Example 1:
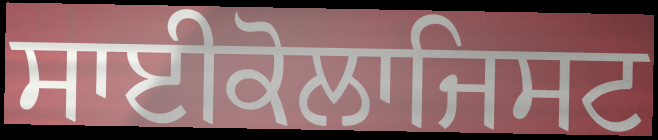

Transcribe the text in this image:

ਸਾਈਕੋਲਾਜਿਸਟ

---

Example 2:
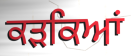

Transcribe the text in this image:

ਕੜਕਿਆਂ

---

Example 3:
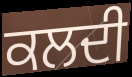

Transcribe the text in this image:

ਕਲਦੀ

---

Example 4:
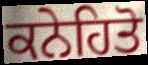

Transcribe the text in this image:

ਕਨੇਹਿਤੋ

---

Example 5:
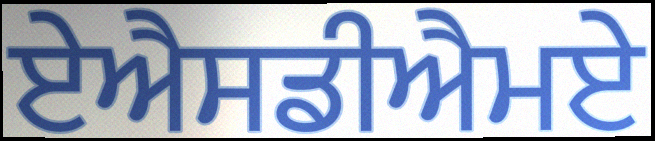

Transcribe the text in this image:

ਏਐਸਡੀਐਮਏ